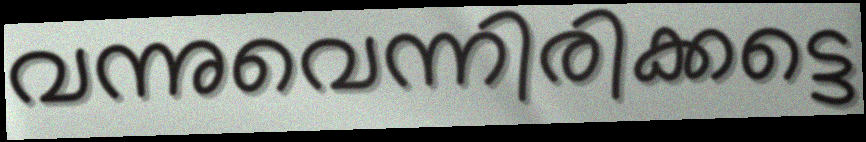
വന്നുവെന്നിരിക്കട്ടെ